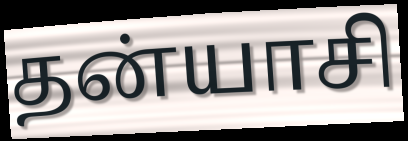
தன்யாசி